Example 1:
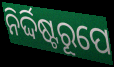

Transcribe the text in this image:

ନିର୍ଦ୍ଦିଷ୍ଟରୂପେ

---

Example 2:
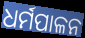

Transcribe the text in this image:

ଧର୍ମପାଳନ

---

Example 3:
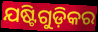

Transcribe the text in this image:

ଯଷ୍ଟିଗୁଡ଼ିକର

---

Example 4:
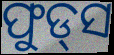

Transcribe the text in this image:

ଫୁଡ୍‌ସ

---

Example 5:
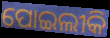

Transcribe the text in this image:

ପୋଇଲୀକି